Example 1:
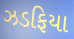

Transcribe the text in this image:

ઝડફિયા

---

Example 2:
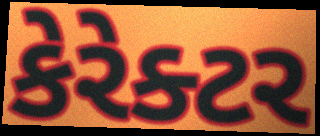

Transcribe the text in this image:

કેરેક્ટર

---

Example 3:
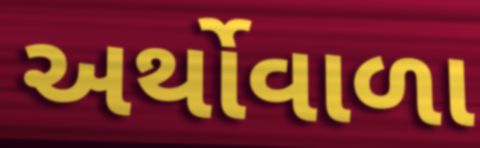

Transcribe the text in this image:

અર્થોવાળા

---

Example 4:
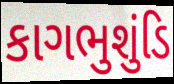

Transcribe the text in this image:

કાગભુશુંડિ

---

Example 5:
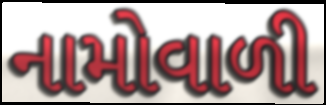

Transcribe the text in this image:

નામોવાળી